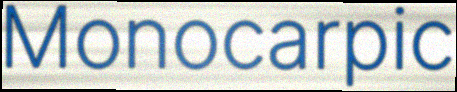
Monocarpic